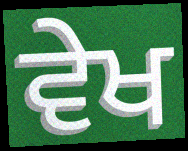
ਵੇਖ